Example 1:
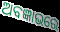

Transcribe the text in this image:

ଅବଜ୍ଞାଭରେ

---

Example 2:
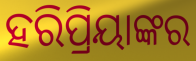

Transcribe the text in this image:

ହରିପ୍ରିୟାଙ୍କର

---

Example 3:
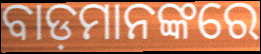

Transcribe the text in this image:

ବାଡ଼ମାନଙ୍କରେ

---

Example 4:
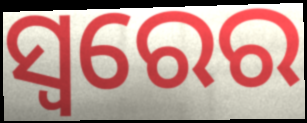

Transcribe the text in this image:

ସ୍ୱରେର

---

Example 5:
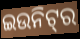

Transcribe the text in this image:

ଇଉନିଟ୍‍ର